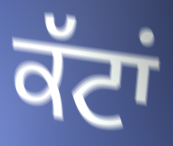
ਕੱਟਾਂ